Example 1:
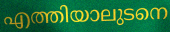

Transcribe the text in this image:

എത്തിയാലുടനെ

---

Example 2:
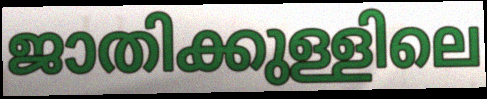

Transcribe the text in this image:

ജാതിക്കുള്ളിലെ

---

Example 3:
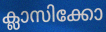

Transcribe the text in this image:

ക്ലാസിക്കോ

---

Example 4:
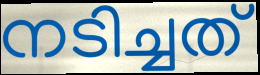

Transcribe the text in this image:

നടിച്ചത്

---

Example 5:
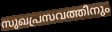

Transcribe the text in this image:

സുഖപ്രസവത്തിനും